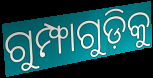
ଗୁମ୍ଫାଗୁଡ଼ିକୁ